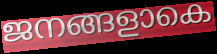
ജനങ്ങളാകെ